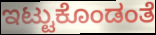
ಇಟ್ಟುಕೊಂಡಂತೆ